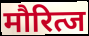
मौरित्ज